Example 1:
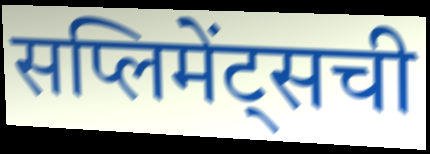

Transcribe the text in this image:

सप्लिमेंट्सची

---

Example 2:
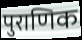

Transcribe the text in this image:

पुराणिक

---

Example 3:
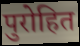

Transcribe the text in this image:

पुरोहित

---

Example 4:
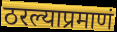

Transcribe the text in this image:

ठरल्याप्रमाणं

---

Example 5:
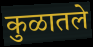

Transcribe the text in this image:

कुळातले